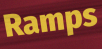
Ramps